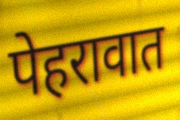
पेहरावात